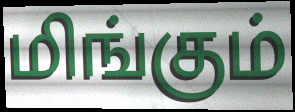
மிங்கும்